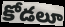
కోడలూ